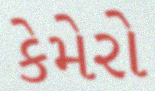
કેમેરો